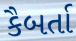
કૈબર્તા